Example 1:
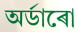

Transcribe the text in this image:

অৰ্ডাৰো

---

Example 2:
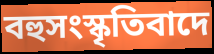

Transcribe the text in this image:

বহুসংস্কৃতিবাদে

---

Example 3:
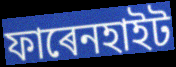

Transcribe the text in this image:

ফাৰেনহাইট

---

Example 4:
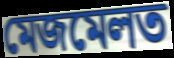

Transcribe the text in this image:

মেজমেলত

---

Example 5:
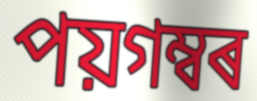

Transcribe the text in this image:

পয়গম্বৰ